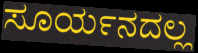
ಸೂರ್ಯನದಲ್ಲ